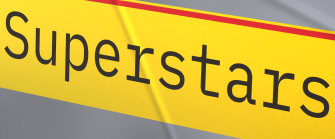
Superstars